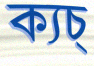
ক্যচ্